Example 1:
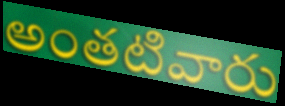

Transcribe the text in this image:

అంతటివారు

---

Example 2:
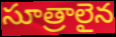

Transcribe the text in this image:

సూత్రాలైన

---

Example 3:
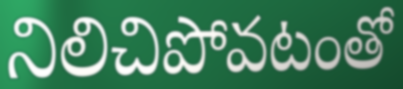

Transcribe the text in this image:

నిలిచిపోవటంతో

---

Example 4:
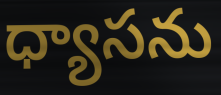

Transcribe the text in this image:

ధ్యాసను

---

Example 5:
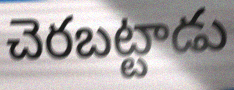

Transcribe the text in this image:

చెరబట్టాడు